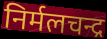
निर्मलचन्द्र